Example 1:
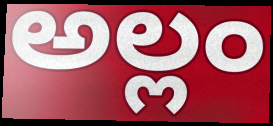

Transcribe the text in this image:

అల్లం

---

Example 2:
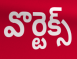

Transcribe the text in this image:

వొర్టెక్స్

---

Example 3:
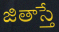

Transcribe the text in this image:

జితాస్తే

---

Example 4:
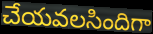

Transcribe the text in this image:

చేయవలసిందిగా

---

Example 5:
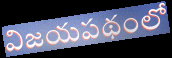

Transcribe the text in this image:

విజయపథంలో